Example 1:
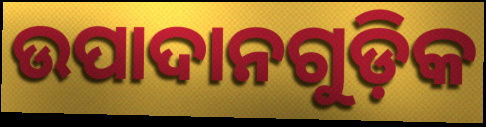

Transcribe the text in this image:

ଉପାଦାନଗୁଡ଼ିକ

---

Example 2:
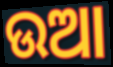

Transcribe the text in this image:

ଉଆ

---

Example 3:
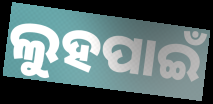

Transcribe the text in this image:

ଲୁହପାଇଁ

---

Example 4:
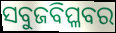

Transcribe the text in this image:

ସବୁଜବିପ୍ଳବର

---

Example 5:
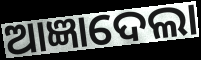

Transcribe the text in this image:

ଆଜ୍ଞାଦେଲା